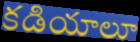
కడియాలూ